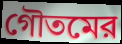
গৌতমের